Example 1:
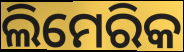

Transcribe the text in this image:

ଲିମେରିକ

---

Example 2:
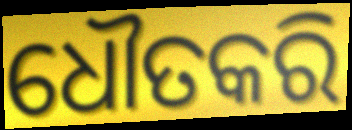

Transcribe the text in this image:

ଧୌତକରି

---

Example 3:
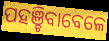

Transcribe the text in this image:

ପହଞ୍ଚିବାବେଳେ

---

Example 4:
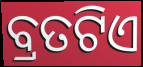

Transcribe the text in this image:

ବ୍ରତଟିଏ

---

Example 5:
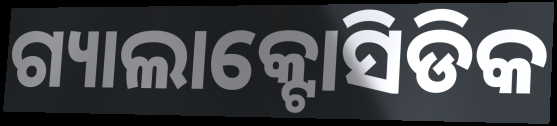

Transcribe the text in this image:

ଗ୍ୟାଲାକ୍ଟୋସିଡିକ